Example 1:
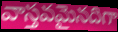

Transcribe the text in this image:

వాస్తవమైనదిగా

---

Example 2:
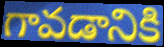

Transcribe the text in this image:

గావడానికి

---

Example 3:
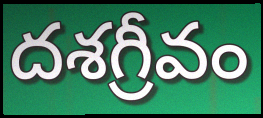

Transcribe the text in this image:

దశగ్రీవం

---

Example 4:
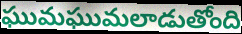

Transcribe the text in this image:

ఘుమఘుమలాడుతోంది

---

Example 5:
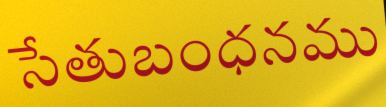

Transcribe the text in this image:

సేతుబంధనము